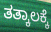
ತತ್ಕಾಲಕ್ಕೆ